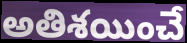
అతిశయించే